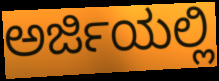
ಅರ್ಜಿಯಲ್ಲಿ